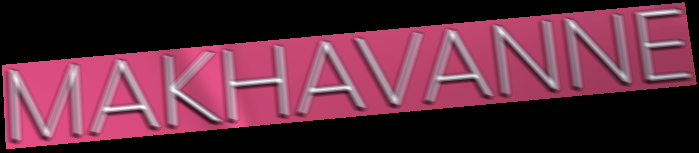
MAKHAVANNE